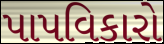
પાપવિકારો